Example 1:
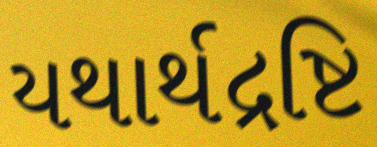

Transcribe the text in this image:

યથાર્થદ્રષ્ટિ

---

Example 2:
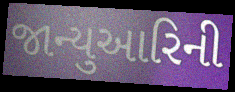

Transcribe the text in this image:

જાન્યુઆરિની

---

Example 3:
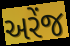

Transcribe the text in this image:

અરેંજ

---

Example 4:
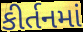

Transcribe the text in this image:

કીર્તનમાં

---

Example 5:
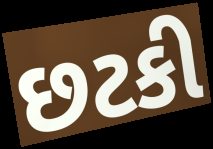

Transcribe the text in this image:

છટકી